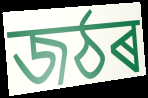
জঠৰ